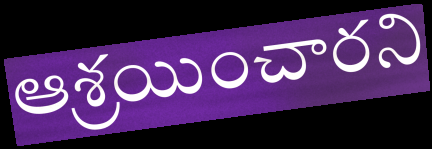
ఆశ్రయించారని